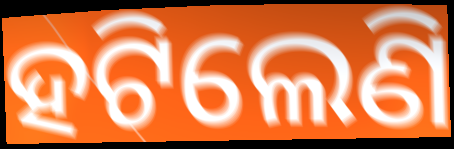
ହଟିଲେଣି